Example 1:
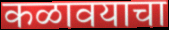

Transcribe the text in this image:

कळावयाचा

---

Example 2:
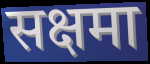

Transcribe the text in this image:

सक्षमा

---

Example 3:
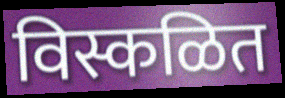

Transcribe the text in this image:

विस्कळित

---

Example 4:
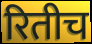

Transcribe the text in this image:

रितीच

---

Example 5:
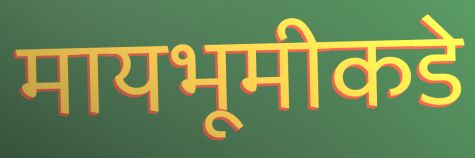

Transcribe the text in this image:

मायभूमीकडे